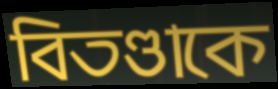
বিতণ্ডাকে